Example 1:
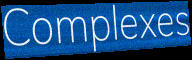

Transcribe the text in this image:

Complexes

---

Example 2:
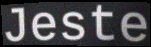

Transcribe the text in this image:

Jeste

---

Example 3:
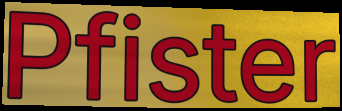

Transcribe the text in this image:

Pfister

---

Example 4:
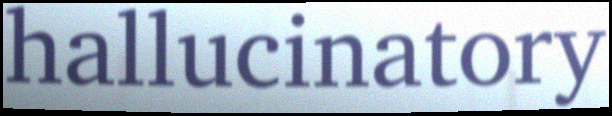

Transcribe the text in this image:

hallucinatory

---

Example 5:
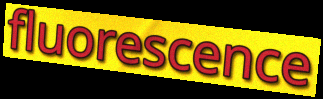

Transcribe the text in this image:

fluorescence